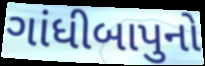
ગાંધીબાપુનો